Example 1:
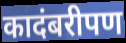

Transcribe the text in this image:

कादंबरीपण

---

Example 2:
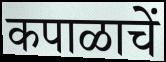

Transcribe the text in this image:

कपाळाचें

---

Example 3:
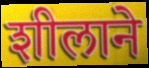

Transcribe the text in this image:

शीलाने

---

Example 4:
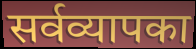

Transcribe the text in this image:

सर्वव्यापका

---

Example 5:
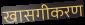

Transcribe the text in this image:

खासगीकरण